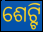
ଶେଟ୍ଟି